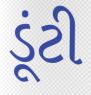
ડૂંટી